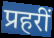
प्रहरीं